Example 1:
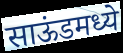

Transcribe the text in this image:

साऊंडमध्ये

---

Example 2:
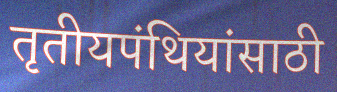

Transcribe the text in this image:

तृतीयपंथियांसाठी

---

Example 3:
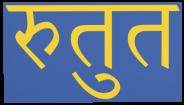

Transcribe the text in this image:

रुतुत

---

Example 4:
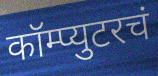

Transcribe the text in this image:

कॉम्प्युटरचं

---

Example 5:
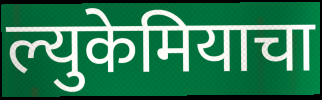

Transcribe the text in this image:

ल्युकेमियाचा